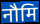
नौमि